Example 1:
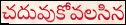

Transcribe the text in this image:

చదువుకోవలసిన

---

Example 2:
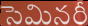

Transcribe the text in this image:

సెమినరీ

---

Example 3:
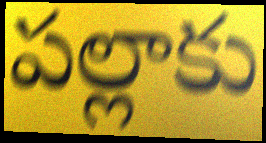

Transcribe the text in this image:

పల్లాకు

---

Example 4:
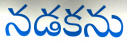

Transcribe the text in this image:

నడకను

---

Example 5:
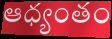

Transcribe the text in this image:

ఆధ్యంతం